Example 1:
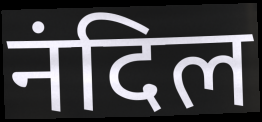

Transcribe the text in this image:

नंदिल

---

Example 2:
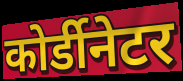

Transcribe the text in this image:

कोर्डीनेटर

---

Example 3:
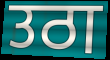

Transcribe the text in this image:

उठा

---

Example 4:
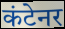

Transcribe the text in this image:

कंटेनर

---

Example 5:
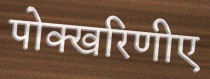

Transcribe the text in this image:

पोक्खरिणीए